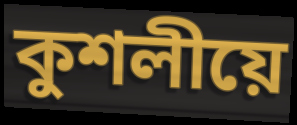
কুশলীয়ে